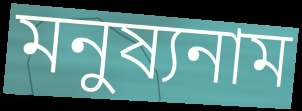
মনুষ্যনাম